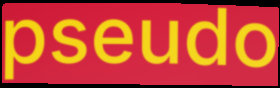
pseudo